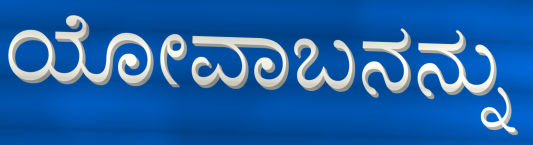
ಯೋವಾಬನನ್ನು